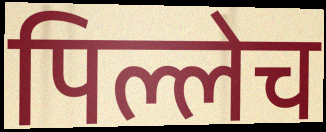
पिल्लेच